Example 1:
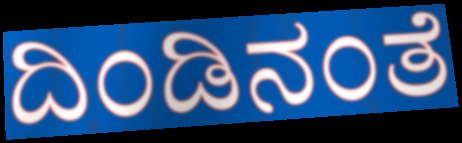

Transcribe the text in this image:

ದಿಂಡಿನಂತೆ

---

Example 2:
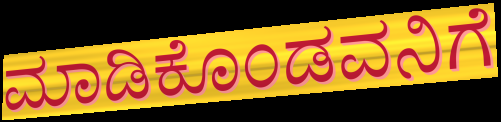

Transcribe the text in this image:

ಮಾಡಿಕೊಂಡವನಿಗೆ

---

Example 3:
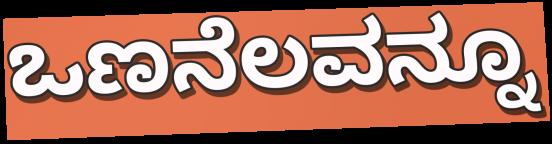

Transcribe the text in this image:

ಒಣನೆಲವನ್ನೂ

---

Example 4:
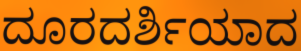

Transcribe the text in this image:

ದೂರದರ್ಶಿಯಾದ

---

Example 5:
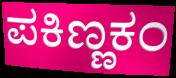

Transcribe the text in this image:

ಪಕಿಣ್ಣಕಂ